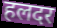
हलदर